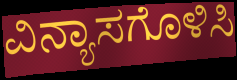
ವಿನ್ಯಾಸಗೊಳಿಸಿ